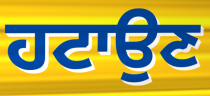
ਹਟਾਉਣ